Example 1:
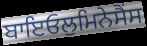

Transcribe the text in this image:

ਬਾਇਓਲੁਮਿਨੇਸੈਂਸ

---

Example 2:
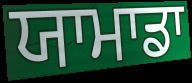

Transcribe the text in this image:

ਯਾਮਾਡਾ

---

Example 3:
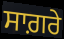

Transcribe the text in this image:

ਸਾਗ਼ਰੇ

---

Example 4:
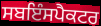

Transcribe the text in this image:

ਸਬਇੰਸਪੈਕਟਰ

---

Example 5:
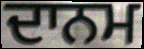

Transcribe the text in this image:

ਦਾਨਮ